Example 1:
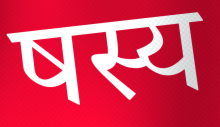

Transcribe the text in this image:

षस्य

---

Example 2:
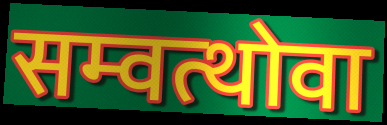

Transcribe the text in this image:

सम्वत्थोवा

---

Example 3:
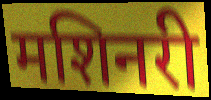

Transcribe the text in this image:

मशिनरी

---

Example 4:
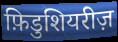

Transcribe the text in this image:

फ़िडुशियरीज़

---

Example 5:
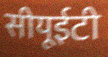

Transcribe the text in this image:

सीयूईटी